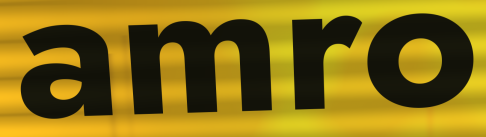
amro